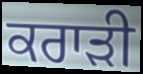
ਕਰਾੜੀ